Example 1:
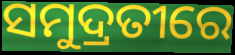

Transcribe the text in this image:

ସମୁଦ୍ରତୀରେ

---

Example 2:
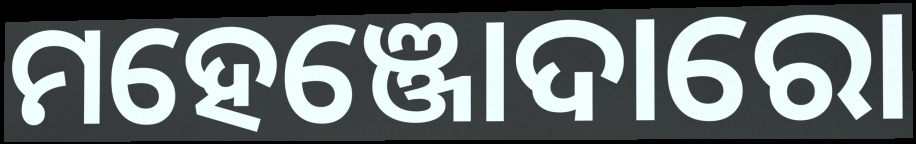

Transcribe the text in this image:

ମହେଞ୍ଜୋଦାରୋ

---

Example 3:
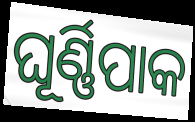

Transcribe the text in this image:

ଘୂର୍ଣ୍ଣିପାକ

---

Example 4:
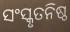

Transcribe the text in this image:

ସଂସ୍କୃତନିଷ୍ଠ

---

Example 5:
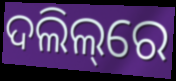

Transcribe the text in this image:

ଦଲିଲ୍‌ରେ